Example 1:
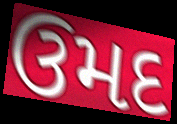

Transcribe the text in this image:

ઉમદ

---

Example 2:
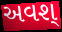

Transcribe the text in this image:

અવશ્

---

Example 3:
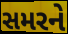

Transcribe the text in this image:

સમરને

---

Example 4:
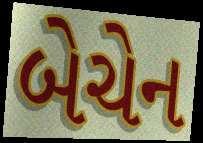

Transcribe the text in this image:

બેચેન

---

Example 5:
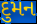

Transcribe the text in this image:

દુમન